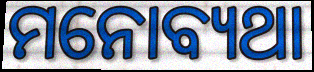
ମନୋବ୍ୟଥା